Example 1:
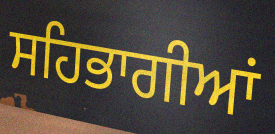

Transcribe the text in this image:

ਸਹਿਭਾਗੀਆਂ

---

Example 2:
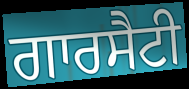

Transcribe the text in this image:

ਗਾਰਸੈਟੀ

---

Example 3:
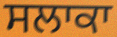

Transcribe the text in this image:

ਸਲਾਕਾ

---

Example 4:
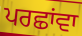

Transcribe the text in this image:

ਪਰਛਾਂਵਾ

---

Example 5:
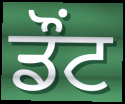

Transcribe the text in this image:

ਡੌਂਟ